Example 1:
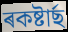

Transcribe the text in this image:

ৰকষ্টাৰ্ছ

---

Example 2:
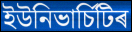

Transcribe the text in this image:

ইউনিভাৰ্চিটিৰ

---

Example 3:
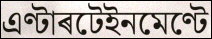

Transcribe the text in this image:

এণ্টাৰটেইনমেণ্টে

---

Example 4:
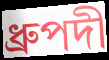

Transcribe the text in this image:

ধ্ৰুপদী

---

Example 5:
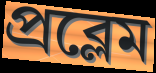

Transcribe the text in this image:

প্ৰব্লেম